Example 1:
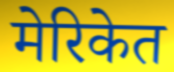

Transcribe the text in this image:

मेरिकेत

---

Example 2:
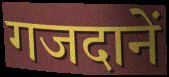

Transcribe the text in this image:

गजदानें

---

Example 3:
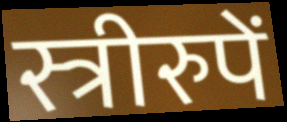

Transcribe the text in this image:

स्त्रीरुपें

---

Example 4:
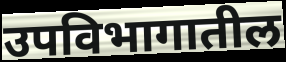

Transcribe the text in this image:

उपविभागातील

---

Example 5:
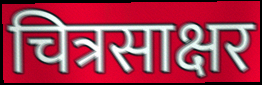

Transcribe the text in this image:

चित्रसाक्षर